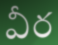
వీర